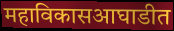
महाविकासआघाडीत